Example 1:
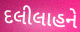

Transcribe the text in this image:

દલીલાહને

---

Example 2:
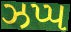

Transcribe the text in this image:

ઝપ્પ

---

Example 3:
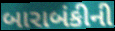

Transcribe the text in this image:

બારાબંકીની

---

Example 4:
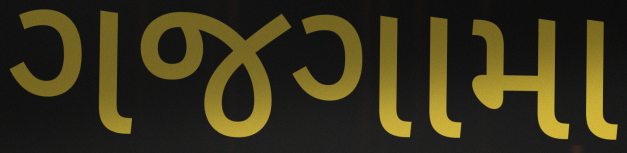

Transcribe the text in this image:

ગજગામા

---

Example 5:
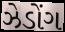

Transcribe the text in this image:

ઝેડોંગ